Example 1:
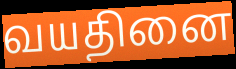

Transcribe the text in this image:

வயதினை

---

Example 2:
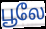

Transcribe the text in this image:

பூலே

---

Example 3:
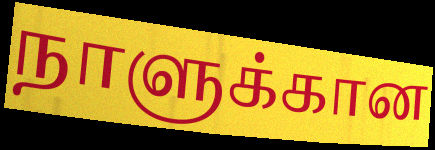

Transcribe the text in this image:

நாளுக்கான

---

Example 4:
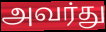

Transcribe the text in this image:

அவர்து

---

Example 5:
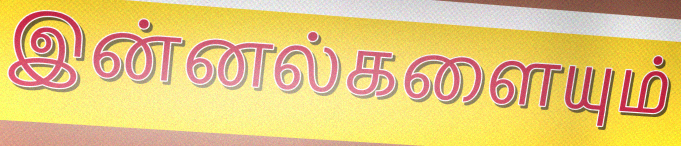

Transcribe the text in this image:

இன்னல்களையும்